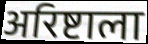
अरिष्टाला